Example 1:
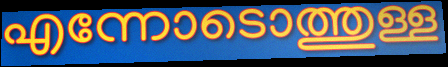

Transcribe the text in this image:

എന്നോടൊത്തുള്ള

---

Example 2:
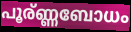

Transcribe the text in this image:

പൂര്ണ്ണബോധം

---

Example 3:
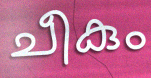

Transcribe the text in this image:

ചീകും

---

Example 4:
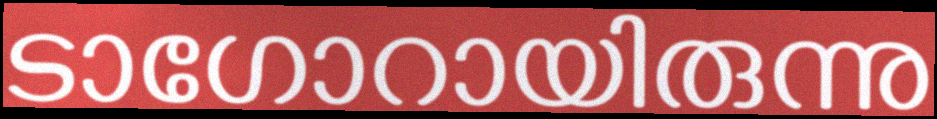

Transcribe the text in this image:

ടാഗോറായിരുന്നു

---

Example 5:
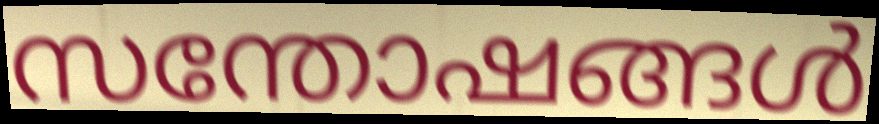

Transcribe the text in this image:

സന്തോഷങ്ങൾ